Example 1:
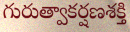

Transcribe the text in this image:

గురుత్వాకర్షణశక్తి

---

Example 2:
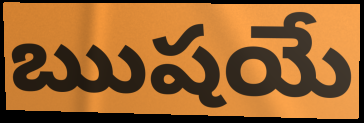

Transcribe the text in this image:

ఋషయే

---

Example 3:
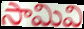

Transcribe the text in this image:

సామివి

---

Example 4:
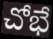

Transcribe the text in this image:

చోభే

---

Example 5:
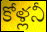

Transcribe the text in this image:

కోళ్లనీ